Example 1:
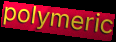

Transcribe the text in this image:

polymeric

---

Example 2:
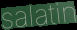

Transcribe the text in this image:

salatin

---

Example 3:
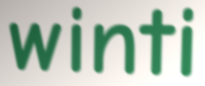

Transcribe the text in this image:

winti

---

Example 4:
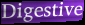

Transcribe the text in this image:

Digestive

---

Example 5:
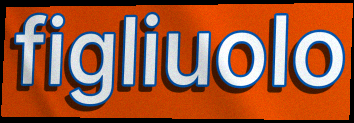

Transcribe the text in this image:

figliuolo